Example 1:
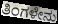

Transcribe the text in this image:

ತಿಂಗಳೇನು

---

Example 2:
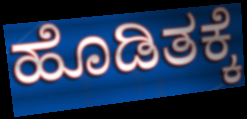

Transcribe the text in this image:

ಹೊಡಿತಕ್ಕೆ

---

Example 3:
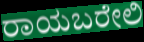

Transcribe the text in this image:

ರಾಯಬರೇಲಿ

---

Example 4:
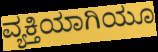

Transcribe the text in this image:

ವ್ಯಕ್ತಿಯಾಗಿಯೂ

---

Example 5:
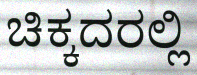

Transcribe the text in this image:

ಚಿಕ್ಕದರಲ್ಲಿ